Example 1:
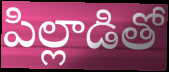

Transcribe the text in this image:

పిల్లాడితో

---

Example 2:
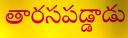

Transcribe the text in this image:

తారసపడ్డాడు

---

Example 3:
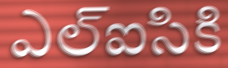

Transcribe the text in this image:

ఎల్ఐసికి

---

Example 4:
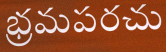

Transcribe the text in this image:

భ్రమపరచు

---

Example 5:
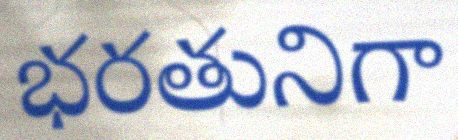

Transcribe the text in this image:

భరతునిగా